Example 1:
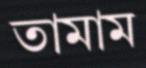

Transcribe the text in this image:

তামাম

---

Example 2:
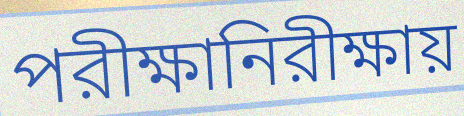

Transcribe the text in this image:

পরীক্ষানিরীক্ষায়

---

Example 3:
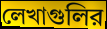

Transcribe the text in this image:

লেখাগুলির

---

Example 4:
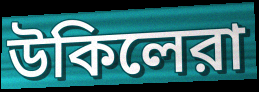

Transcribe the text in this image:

উকিলেরা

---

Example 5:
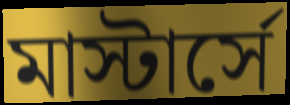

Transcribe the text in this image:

মাস্টার্সে